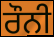
ਰੌਨੀ